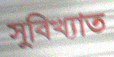
সুবিখ্যাত